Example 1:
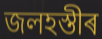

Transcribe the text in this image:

জলহস্তীৰ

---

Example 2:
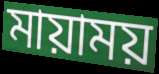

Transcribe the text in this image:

মায়াময়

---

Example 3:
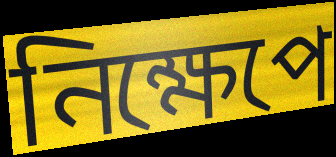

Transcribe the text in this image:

নিক্ষেপে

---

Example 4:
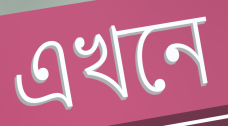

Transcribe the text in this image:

এখনে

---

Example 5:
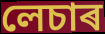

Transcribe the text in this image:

লেচাৰ